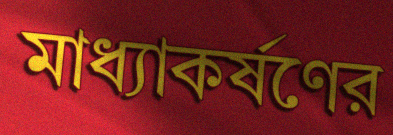
মাধ্যাকর্ষণের